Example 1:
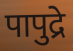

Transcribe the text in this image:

पापुद्रे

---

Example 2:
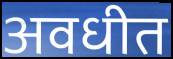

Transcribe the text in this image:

अवधीत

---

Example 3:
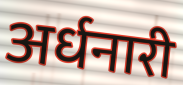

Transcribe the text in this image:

अर्धनारी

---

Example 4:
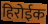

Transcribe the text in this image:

हिरोईक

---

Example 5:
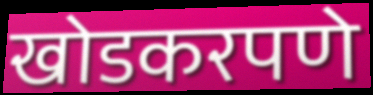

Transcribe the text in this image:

खोडकरपणे